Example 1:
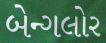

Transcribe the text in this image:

બેન્ગલોર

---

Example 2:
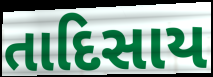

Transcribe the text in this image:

તાદિસાય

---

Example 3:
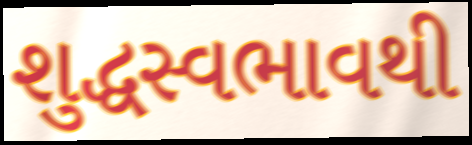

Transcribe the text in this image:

શુદ્ધસ્વભાવથી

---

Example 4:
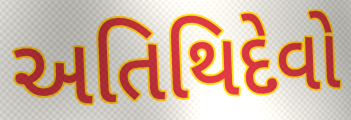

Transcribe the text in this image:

અતિથિદેવો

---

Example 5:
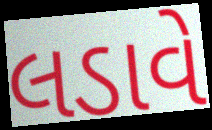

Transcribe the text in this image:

લડાવે